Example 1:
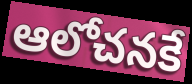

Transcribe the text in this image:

ఆలోచనకే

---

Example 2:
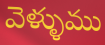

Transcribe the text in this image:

వెళ్ళుము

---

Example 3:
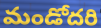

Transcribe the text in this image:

మండోదరి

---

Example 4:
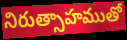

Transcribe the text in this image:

నిరుత్సాహముతో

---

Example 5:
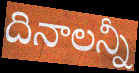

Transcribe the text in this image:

దినాలన్నీ